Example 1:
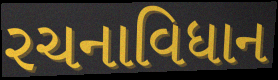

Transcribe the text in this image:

રચનાવિધાન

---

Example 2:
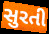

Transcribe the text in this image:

સુરતી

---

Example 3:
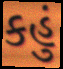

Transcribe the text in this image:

કહું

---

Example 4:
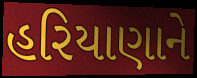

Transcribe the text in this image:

હરિયાણાને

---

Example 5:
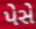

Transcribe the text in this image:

પેસે